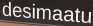
desimaatu